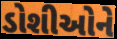
ડોશીઓને